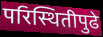
परिस्थितीपुढे